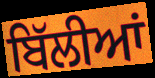
ਬਿੱਲੀਆਂ